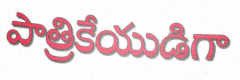
పాత్రికేయుడిగా